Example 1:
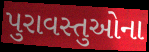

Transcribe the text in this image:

પુરાવસ્તુઓના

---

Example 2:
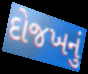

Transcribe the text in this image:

દોજખનું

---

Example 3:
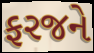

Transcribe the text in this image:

ફરજને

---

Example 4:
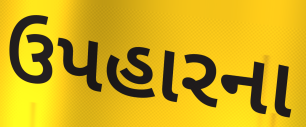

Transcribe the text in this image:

ઉપહારના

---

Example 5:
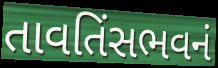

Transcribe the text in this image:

તાવતિંસભવનં